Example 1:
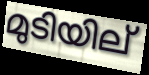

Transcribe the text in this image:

മുടിയില്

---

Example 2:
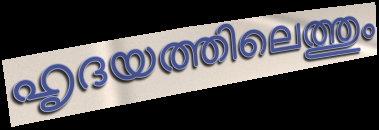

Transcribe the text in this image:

ഹൃദയത്തിലെത്തും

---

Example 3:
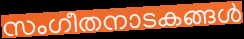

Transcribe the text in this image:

സംഗീതനാടകങ്ങൾ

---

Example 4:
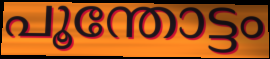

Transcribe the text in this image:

പൂന്തോട്ടം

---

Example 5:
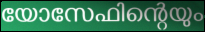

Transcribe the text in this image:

യോസേഫിന്റെയും